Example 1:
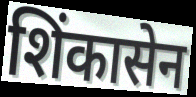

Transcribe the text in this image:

शिंकासेन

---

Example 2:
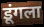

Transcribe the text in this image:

डूंगला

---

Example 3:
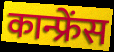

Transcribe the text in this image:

कान्फ्रेंस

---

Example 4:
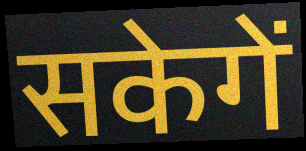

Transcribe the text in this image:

सकेगें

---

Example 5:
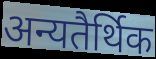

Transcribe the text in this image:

अन्यतैर्थिक